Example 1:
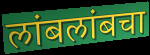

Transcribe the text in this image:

लांबलांबचा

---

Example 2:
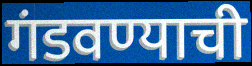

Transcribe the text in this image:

गंडवण्याची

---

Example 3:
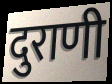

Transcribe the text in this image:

दुराणी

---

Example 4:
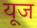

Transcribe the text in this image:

यूज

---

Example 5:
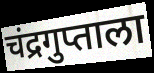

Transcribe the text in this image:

चंद्रगुप्ताला